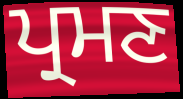
ਪ੍ਰਮਣ